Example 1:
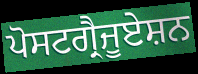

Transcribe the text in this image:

ਪੋਸਟਗ੍ਰੈਜੂਏਸ਼ਨ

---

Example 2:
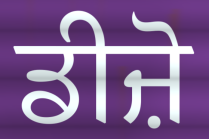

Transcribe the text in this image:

ਡੀਜ਼ੋ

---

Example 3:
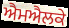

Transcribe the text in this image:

ਐਮਐਲਕੇ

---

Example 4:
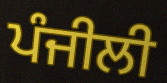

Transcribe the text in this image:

ਪੰਜੀਲੀ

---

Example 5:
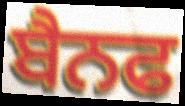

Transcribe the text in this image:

ਬੈਨਫ